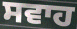
ਸਵਾਹ